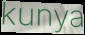
kunya